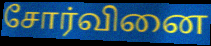
சோர்வினை